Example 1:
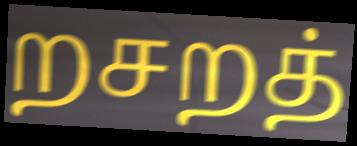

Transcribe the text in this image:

றசறத்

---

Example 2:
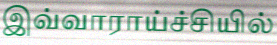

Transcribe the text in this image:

இவ்வாராய்ச்சியில்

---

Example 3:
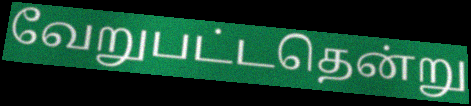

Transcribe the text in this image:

வேறுபட்டதென்று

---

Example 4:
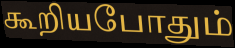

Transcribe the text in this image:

கூறியபோதும்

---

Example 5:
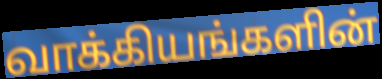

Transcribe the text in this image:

வாக்கியங்களின்